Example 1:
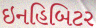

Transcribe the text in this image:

ઇનહિબિટર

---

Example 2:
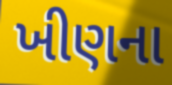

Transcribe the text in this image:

ખીણના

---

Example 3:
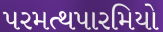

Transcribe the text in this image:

પરમત્થપારમિયો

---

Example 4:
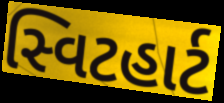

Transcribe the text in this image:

સ્વિટહાર્ટ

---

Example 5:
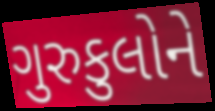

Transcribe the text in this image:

ગુરુકુલોને